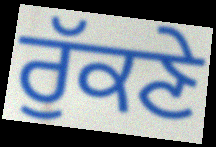
ਰੁੱਕਣੇ